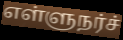
எள்ளுநர்ச்